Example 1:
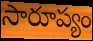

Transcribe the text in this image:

సారూప్యం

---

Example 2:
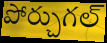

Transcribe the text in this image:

పోర్చుగల్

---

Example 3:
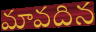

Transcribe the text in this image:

మావదిన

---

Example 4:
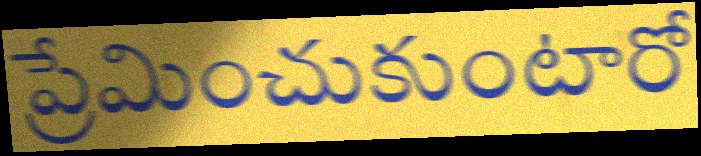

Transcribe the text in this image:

ప్రేమించుకుంటారో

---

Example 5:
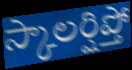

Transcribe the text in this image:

స్కాలర్షిప్తో